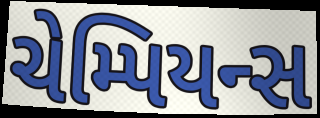
ચેમ્પિયન્સ